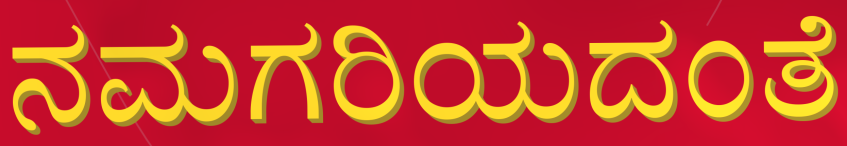
ನಮಗರಿಯದಂತೆ